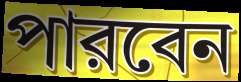
পারবেন